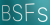
BSFs